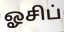
ஓசிப்